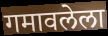
गमावलेला